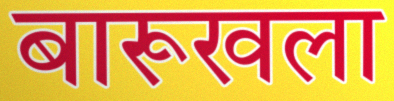
बारूखला